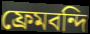
ফ্রেমবন্দি